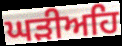
ਘੜੀਅਹਿ